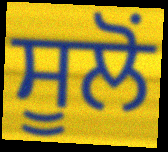
ਸੂਲੋਂ